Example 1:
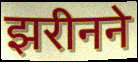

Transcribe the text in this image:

झरीनने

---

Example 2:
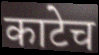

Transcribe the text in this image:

काटेच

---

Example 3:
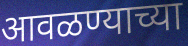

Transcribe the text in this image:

आवळण्याच्या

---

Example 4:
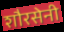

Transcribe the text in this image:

शौरसेनी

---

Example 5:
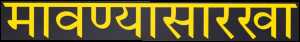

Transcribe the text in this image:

मावण्यासारखा